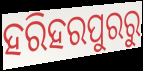
ହରିହରପୁରରୁ